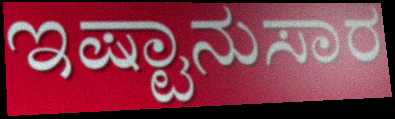
ಇಷ್ಟಾನುಸಾರ